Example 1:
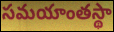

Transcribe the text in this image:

సమయాంతస్థా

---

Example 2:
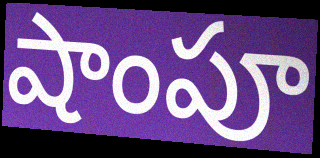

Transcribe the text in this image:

షాంపూ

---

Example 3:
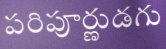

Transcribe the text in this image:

పరిపూర్ణుడగు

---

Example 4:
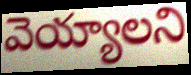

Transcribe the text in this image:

వెయ్యాలని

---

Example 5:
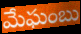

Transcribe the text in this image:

మేఘంబు